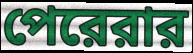
পেরেরার